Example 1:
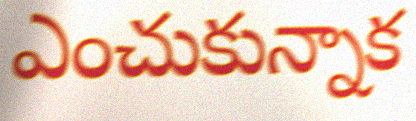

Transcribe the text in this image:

ఎంచుకున్నాక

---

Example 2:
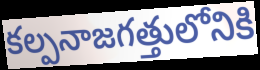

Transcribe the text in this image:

కల్పనాజగత్తులోనికి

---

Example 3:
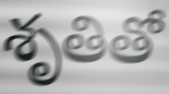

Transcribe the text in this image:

శృతితో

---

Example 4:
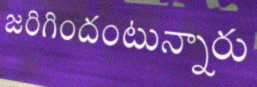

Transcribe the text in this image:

జరిగిందంటున్నారు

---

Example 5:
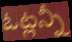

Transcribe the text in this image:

ఓట్లన్నీ